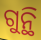
ଗୁନ୍ଥି